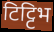
टिट्टिभ